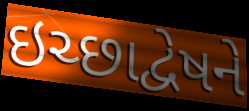
ઇચ્છાદ્વેષને